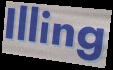
Illing